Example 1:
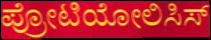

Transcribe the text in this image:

ಪ್ರೋಟಿಯೋಲಿಸಿಸ್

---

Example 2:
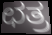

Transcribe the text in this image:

ಛತ್ರ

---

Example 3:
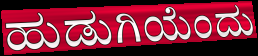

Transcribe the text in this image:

ಹುಡುಗಿಯೆಂದು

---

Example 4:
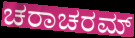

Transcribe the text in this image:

ಚರಾಚರಮ್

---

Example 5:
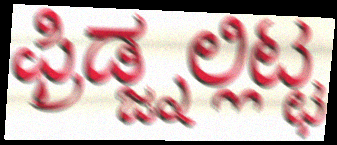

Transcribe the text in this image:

ಫ್ರಿಡ್ಜ್ನಲ್ಲಿಟ್ಟ